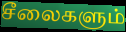
சீலைகளும்